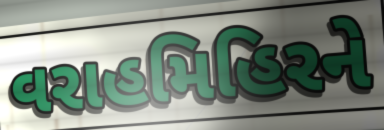
વરાહમિહિરને